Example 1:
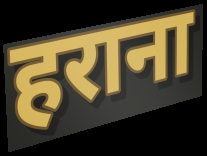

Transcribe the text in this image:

हराना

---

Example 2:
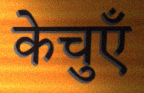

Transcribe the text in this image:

केचुएँ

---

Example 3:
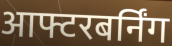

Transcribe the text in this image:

आफ्टरबर्निंग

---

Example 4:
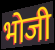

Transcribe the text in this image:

भोजी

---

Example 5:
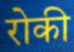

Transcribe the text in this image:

रोकी